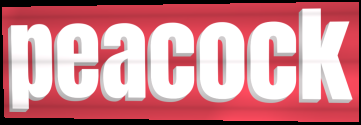
peacock